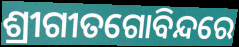
ଶ୍ରୀଗୀତଗୋବିନ୍ଦରେ